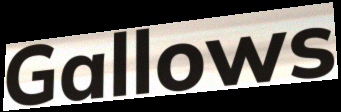
Gallows